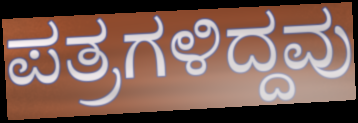
ಪತ್ರಗಳಿದ್ದವು